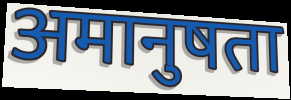
अमानुषता